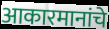
आकारमानांचे